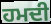
ਹਮਦੀ